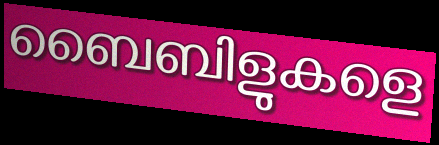
ബൈബിളുകളെ